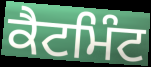
ਕੈਟਮਿੰਟ